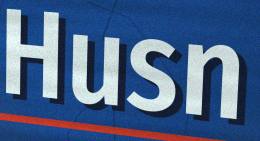
Husn